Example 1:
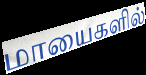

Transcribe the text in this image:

மாயைகளில்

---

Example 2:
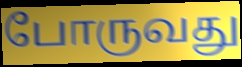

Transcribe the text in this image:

போருவது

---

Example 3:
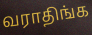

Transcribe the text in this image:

வராதிங்க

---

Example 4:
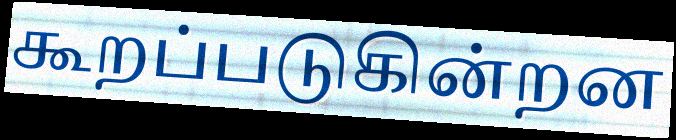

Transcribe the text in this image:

கூறப்படுகின்றன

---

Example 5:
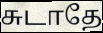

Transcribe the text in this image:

சுடாதே